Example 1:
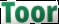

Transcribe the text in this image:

Toor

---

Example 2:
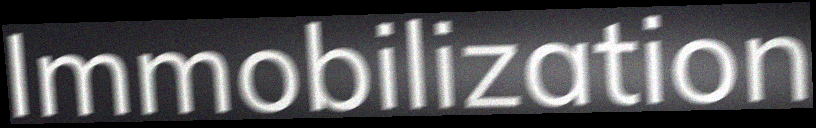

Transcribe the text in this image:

Immobilization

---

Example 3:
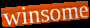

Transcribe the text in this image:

winsome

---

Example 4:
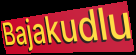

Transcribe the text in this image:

Bajakudlu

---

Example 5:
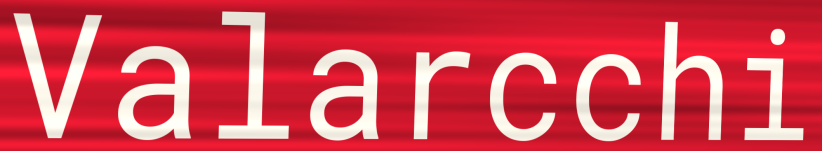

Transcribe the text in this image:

Valarcchi